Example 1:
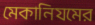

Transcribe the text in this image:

মেকানিযমের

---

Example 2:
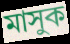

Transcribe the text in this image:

মাসুক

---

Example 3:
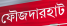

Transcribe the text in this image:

ফৌজদারহাট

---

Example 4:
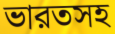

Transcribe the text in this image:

ভারতসহ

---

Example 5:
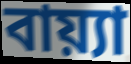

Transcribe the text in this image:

বায়্যা